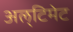
अल्टिमेट